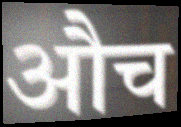
औच